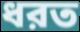
ধরত